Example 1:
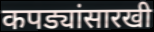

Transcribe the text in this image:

कपड्यांसारखी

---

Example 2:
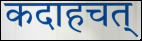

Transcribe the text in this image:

कदाहचत्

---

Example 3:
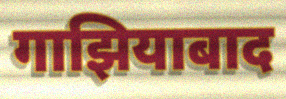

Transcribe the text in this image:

गाझियाबाद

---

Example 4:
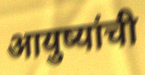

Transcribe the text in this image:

आयुष्यांची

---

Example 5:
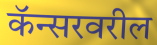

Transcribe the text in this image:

कॅन्सरवरील